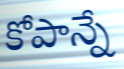
కోపాన్నే